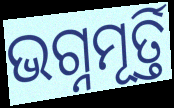
ଭଗ୍ନମୂର୍ତ୍ତି